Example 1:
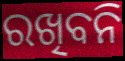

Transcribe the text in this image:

ରଖିବନି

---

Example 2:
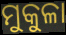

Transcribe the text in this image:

ମୁକୁଳା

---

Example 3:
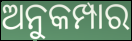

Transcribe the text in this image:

ଅନୁକମ୍ପାର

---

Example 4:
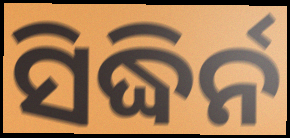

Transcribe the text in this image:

ସିଦ୍ଧିର୍ନ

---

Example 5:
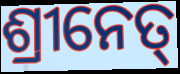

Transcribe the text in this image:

ଶ୍ରୀନେତ୍